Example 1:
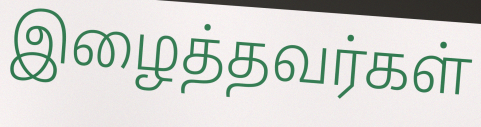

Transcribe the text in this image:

இழைத்தவர்கள்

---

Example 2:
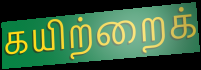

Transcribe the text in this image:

கயிற்றைக்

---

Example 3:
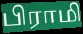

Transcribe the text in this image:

பிராமி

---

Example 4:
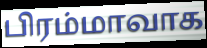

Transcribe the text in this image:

பிரம்மாவாக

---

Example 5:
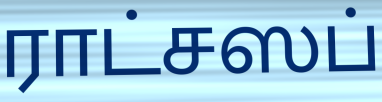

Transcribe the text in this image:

ராட்சஸப்